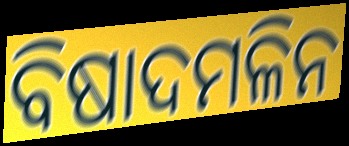
ବିଷାଦମଳିନ